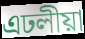
এঢলীয়া